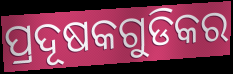
ପ୍ରଦୂଷକଗୁଡିକର